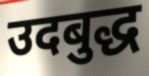
उदबुद्ध